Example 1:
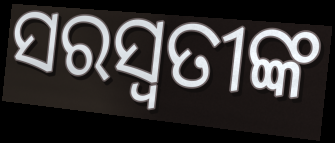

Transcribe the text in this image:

ସରସ୍ବତୀଙ୍କ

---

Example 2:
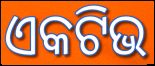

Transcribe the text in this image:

ଏକଟିଭ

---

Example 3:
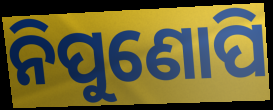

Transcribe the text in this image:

ନିପୁଣୋପି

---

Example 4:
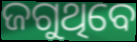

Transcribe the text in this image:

ଜଗୁଥିବେ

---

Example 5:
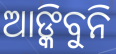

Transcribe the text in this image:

ଆଙ୍କିବୁନି